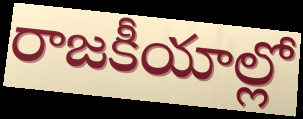
రాజకీయాల్లో